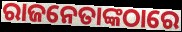
ରାଜନେତାଙ୍କଠାରେ